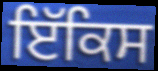
ਇੱਕਿਸ